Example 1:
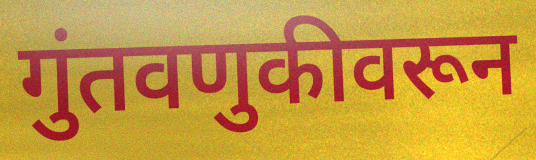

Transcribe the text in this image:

गुंतवणुकीवरून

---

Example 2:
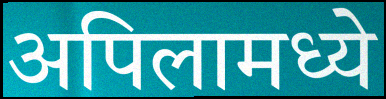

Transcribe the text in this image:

अपिलामध्ये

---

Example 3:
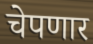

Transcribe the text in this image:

चेपणार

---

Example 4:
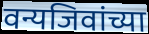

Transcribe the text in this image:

वन्यजिवांच्या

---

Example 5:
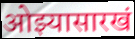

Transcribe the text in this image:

ओझ्यासारखं